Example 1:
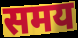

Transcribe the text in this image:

समय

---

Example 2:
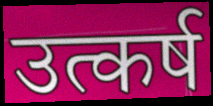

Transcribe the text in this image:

उत्कर्ष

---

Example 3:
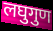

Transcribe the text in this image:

लघुगुण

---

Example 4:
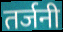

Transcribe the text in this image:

तर्जनी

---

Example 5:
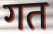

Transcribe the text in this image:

गत